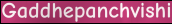
Gaddhepanchvishi